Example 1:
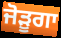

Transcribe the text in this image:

ਜੋੜੂਗਾ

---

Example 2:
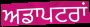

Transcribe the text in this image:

ਅਡਾਪਟਰਾਂ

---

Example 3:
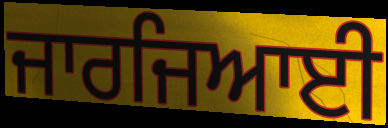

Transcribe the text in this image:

ਜਾਰਜਿਆਈ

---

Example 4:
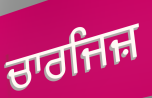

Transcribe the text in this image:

ਚਾਰਜਿਜ਼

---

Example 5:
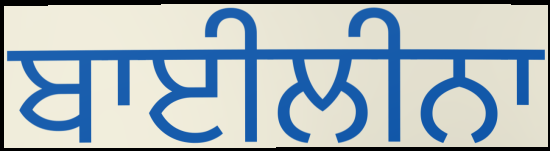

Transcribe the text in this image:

ਬਾਈਲੀਨਾ